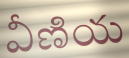
వీణియ